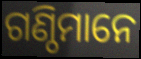
ଗଣ୍ଠିମାନେ